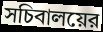
সচিবালয়ের